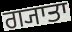
ਗ੍ਯਾਤਾ